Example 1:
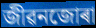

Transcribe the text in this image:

জীৱনজোৰা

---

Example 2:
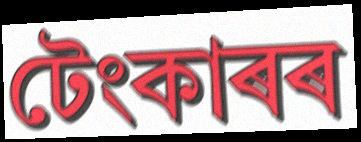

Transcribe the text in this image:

টেংকাৰৰ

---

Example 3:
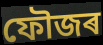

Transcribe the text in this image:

ফৌজৰ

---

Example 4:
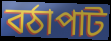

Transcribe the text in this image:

বঠাপাট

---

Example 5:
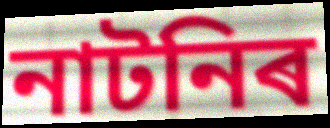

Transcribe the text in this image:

নাটনিৰ